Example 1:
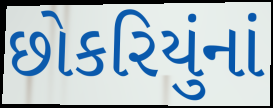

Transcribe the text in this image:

છોકરિયુંનાં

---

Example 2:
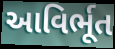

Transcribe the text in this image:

આવિર્ભૂત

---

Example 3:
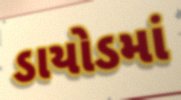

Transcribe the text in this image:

ડાયોડમાં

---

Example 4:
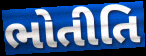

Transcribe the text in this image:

ભોતીતિ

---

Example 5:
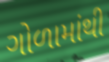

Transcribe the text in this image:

ગોળામાંથી